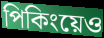
পিকিংয়েও